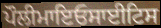
ਪੌਲੀਮਾਇਓਸਾਈਟਿਸ